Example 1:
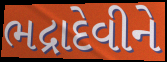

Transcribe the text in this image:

ભદ્રાદેવીને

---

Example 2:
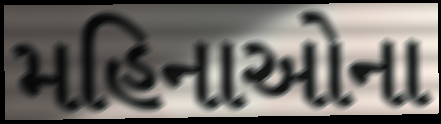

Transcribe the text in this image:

મહિનાઓના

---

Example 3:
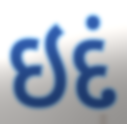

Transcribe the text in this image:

ઇદં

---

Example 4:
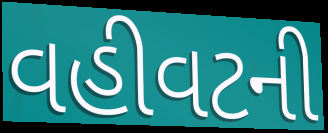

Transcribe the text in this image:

વહીવટની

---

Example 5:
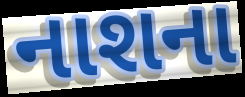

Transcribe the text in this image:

નાશના